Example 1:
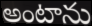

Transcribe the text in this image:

అంటాను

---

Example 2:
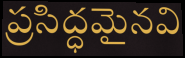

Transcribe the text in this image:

ప్రసిద్ధమైనవి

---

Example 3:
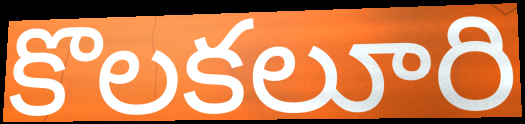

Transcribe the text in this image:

కొలకలూరి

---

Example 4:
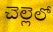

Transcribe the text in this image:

చెల్లెలో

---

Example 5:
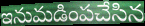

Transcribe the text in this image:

ఇనుమడింపచేసిన